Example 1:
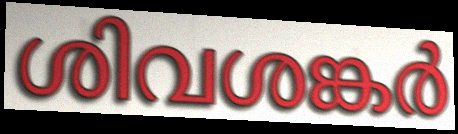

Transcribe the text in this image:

ശിവശങ്കർ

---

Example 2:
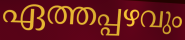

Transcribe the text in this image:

ഏത്തപ്പഴവും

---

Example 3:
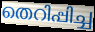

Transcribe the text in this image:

തെറിപ്പിച്ച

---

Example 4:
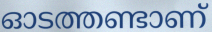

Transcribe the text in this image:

ഓടത്തണ്ടാണ്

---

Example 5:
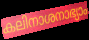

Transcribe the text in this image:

കലിനാശനാഭ്യാം